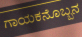
ಗಾಯಕನೊಬ್ಬನ